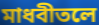
মাধবীতলে